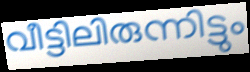
വീട്ടിലിരുന്നിട്ടും